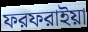
ফরফরাইয়া